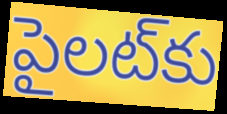
పైలట్‌కు